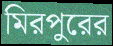
মিরপুরের